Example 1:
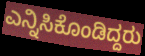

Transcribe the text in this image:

ಎನ್ನಿಸಿಕೊಂಡಿದ್ದರು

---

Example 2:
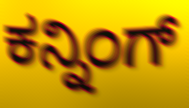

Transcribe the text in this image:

ಕನ್ನಿಂಗ್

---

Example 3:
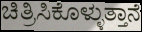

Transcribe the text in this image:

ಚಿತ್ರಿಸಿಕೊಳ್ಳುತ್ತಾನೆ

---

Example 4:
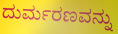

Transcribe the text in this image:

ದುರ್ಮರಣವನ್ನು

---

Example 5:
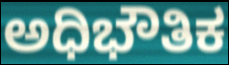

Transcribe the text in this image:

ಅಧಿಭೌತಿಕ